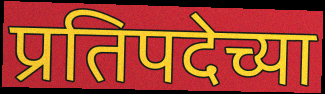
प्रतिपदेच्या